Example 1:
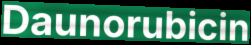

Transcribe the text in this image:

Daunorubicin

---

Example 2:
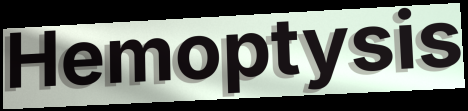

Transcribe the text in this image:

Hemoptysis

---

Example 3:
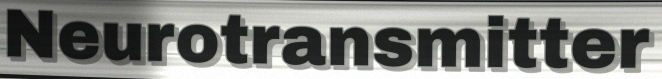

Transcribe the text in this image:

Neurotransmitter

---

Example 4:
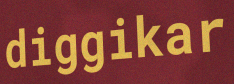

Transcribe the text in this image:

diggikar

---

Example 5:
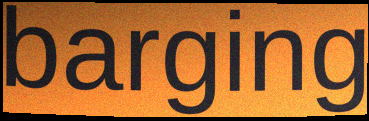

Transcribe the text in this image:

barging